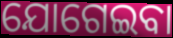
ଯୋଗେଇବା